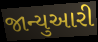
જાન્યુઆરી